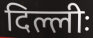
दिल्लीः